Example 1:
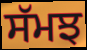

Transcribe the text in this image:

ਸੱਮਝ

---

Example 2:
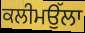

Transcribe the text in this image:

ਕਲੀਮਉੱਲਾ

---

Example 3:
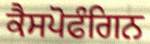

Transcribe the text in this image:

ਕੈਸਪੋਫੰਗਿਨ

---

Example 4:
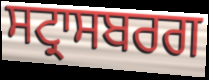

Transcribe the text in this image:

ਸਟ੍ਰਾਸਬਰਗ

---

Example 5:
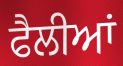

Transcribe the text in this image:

ਫੈਲੀਆਂ